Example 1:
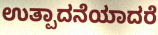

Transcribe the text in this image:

ಉತ್ಪಾದನೆಯಾದರೆ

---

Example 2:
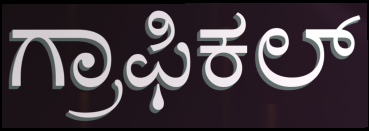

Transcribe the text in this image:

ಗ್ರಾಫಿಕಲ್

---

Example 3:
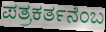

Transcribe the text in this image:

ಪತ್ರಕರ್ತನೆಂಬ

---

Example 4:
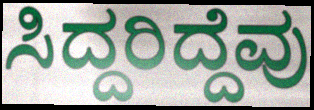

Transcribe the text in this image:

ಸಿದ್ದರಿದ್ದೆವು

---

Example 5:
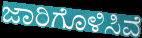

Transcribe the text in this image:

ಜಾರಿಗೊಳಿಸಿವೆ